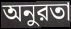
অনুরতা